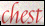
chest